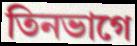
তিনভাগে